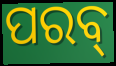
ପରବ୍